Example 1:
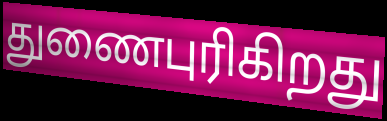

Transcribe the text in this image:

துணைபுரிகிறது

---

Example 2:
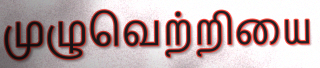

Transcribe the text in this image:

முழுவெற்றியை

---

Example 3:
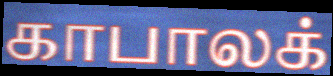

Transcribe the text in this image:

காபாலக்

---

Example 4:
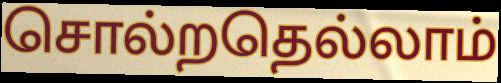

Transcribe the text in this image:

சொல்றதெல்லாம்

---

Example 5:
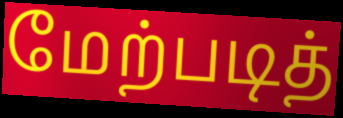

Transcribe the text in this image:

மேற்படித்